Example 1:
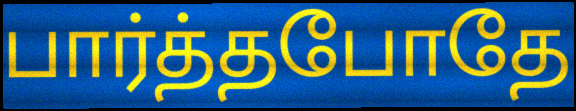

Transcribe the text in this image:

பார்த்தபோதே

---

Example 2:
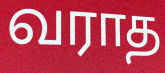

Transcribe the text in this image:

வராத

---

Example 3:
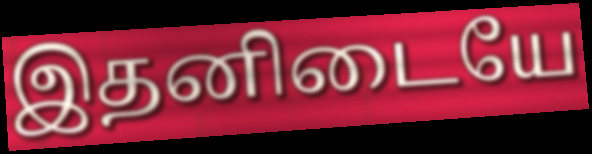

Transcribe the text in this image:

இதனிடையே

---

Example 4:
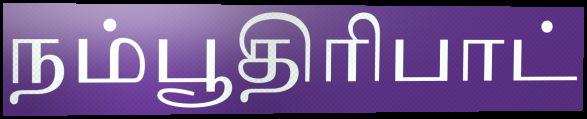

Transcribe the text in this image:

நம்பூதிரிபாட்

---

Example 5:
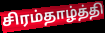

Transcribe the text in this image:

சிரம்தாழ்த்தி